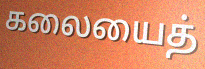
கலையைத்